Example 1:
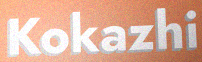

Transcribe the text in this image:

Kokazhi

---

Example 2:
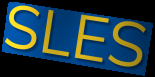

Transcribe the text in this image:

SLES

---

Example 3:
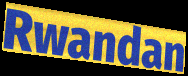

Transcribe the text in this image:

Rwandan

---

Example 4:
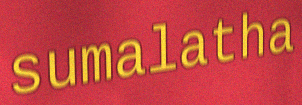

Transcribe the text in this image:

sumalatha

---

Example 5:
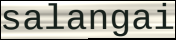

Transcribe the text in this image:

salangai